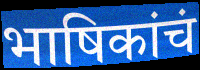
भाषिकांचं